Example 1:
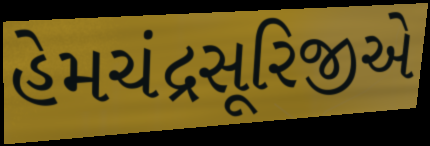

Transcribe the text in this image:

હેમચંદ્રસૂરિજીએ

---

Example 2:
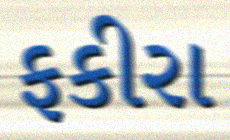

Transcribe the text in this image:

ફકીરા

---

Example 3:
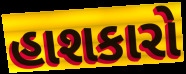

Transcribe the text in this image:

હાશકારો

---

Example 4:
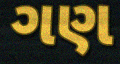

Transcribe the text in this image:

ગણ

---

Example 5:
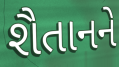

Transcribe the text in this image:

શૈતાનને